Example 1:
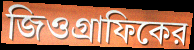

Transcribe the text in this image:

জিওগ্রাফিকের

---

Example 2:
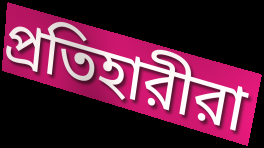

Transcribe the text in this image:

প্রতিহারীরা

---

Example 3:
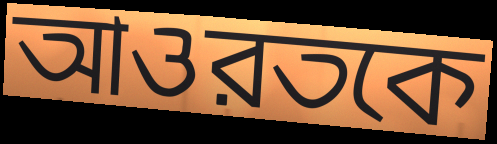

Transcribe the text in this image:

আওরতকে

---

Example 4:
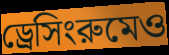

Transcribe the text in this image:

ড্রেসিংরুমেও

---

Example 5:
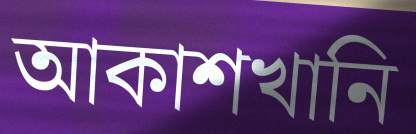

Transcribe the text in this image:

আকাশখানি